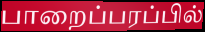
பாறைப்பரப்பில்